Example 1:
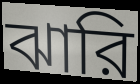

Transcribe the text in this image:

ঝারি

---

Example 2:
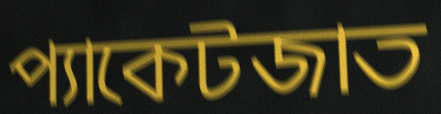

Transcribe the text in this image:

প্যাকেটজাত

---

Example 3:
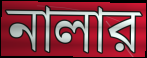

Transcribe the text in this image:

নালার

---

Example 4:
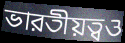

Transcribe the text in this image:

ভারতীয়ত্বও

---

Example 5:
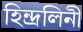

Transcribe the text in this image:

হিন্দ্রলিনী